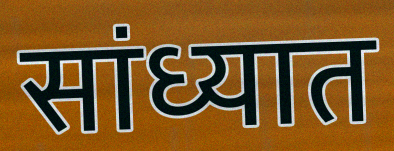
सांध्यात